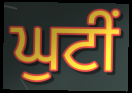
ਘੁਟੀਂ